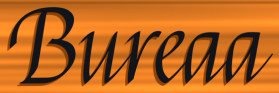
Bureaa